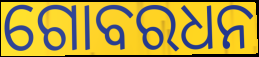
ଗୋବରଧନ